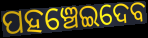
ପହଞ୍ଚେଇଦେବ